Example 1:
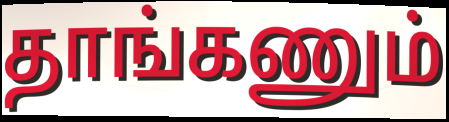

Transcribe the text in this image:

தாங்கணும்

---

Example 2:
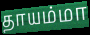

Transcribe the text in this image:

தாயம்மா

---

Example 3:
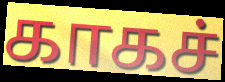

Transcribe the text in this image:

காகச்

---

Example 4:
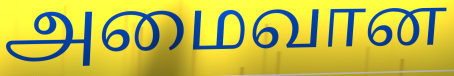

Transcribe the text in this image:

அமைவான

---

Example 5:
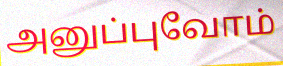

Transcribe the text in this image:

அனுப்புவோம்